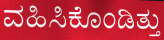
ವಹಿಸಿಕೊಂಡಿತ್ತು